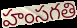
హంసగతి